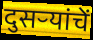
दुसऱ्यांचें